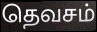
தெவசம்